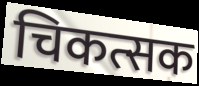
चिकत्सक